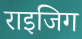
राइजिग